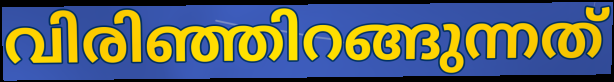
വിരിഞ്ഞിറങ്ങുന്നത്